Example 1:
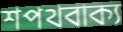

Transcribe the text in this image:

শপথবাক্য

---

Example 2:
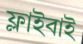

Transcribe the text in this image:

ফ্লাইবাই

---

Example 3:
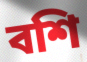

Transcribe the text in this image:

বশি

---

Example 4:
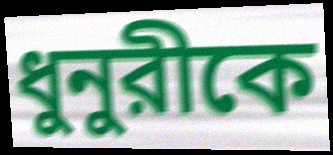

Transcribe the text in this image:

ধুনুরীকে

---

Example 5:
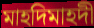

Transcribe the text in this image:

মাহদিমাহদী